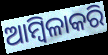
ଆମ୍ବିଳାକରି